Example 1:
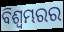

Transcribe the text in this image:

ବିଶ୍ଵମ୍ଭରର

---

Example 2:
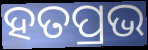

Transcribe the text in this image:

ହତପ୍ରଭ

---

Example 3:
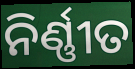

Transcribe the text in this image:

ନିର୍ଣ୍ଣୀତ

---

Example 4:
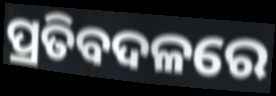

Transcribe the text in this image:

ପ୍ରତିବଦଳରେ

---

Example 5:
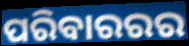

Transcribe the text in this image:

ପରିବାରରର